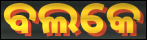
ବଲକେ